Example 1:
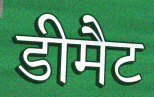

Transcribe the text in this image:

डीमैट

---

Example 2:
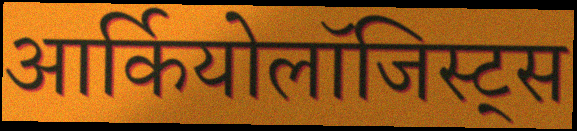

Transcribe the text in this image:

आर्कियोलॉजिस्ट्स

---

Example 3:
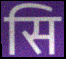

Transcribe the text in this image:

सि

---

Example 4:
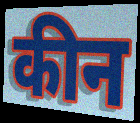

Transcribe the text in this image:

कीन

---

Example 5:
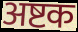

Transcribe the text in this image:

अष्टक